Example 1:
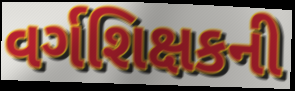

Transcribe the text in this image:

વર્ગશિક્ષકની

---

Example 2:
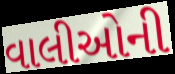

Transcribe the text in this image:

વાલીઓની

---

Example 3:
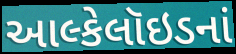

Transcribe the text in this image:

આલ્કેલૉઇડનાં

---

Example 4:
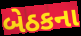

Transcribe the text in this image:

બેઠકના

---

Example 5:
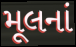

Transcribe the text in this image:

મૂલનાં